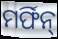
ମର୍ଫିନ୍